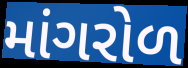
માંગરોળ